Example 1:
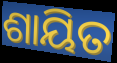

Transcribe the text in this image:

ଶାୟିତ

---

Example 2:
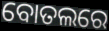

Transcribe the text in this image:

ବୋତଲରେ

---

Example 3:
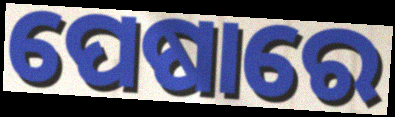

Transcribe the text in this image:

ପେଷାରେ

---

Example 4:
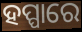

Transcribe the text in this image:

ହପ୍ପାରେ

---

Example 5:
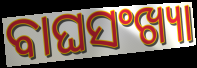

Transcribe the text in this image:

ବାଘସଂଖ୍ୟା